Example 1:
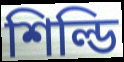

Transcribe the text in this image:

শিল্ডি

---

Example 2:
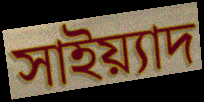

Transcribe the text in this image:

সাইয়্যাদ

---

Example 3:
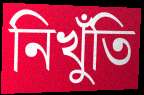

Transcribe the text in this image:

নিখুঁতি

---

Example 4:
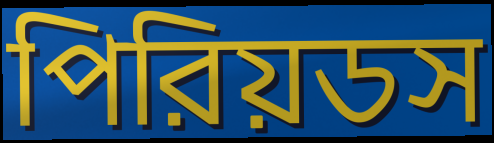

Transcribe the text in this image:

পিরিয়ডস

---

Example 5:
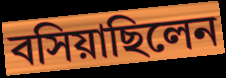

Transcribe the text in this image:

বসিয়াছিলেন